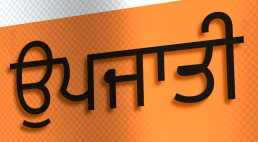
ਉਪਜਾਤੀ